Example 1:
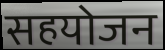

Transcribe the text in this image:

सहयोजन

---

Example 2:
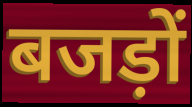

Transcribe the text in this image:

बजड़ों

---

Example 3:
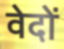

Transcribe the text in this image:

वेदों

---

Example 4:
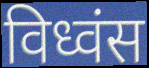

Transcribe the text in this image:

विध्वंस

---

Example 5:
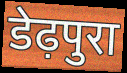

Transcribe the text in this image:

डेढ़पुरा